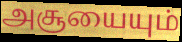
அசூயையும்